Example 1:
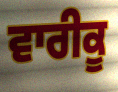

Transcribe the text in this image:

ਵਾਰੀਕੂ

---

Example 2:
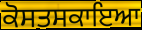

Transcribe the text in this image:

ਕੋਸਤਸਕਾਇਆ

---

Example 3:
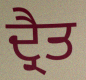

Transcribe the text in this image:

ਦ੍ਰੈਤ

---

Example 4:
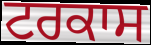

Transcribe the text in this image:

ਟਰਕਾਸ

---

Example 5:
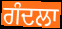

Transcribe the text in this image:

ਗੰਦਲਾ